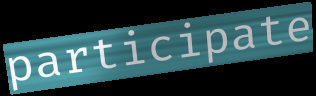
participate